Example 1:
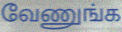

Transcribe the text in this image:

வேணுங்க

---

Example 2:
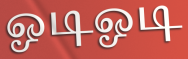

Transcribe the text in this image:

ஓடிஓடி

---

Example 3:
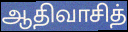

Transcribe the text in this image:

ஆதிவாசித்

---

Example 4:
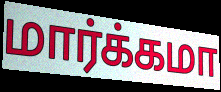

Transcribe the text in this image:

மார்க்கமா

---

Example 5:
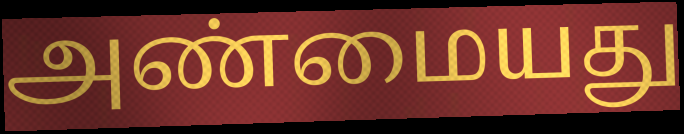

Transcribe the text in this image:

அண்மையது